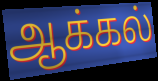
ஆக்கல்